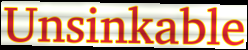
Unsinkable